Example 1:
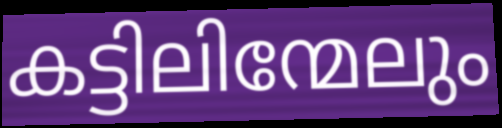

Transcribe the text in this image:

കട്ടിലിന്മേലും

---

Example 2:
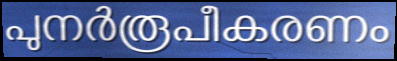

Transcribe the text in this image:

പുനർരൂപീകരണം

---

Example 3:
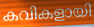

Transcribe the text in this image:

കവികളായി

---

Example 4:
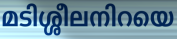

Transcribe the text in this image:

മടിശ്ശീലനിറയെ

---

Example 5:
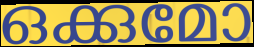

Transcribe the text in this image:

ഒക്കുമോ